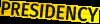
PRESIDENCY